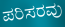
ಪರಿಸರವು